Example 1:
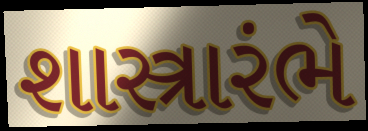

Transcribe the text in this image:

શાસ્ત્રારંભે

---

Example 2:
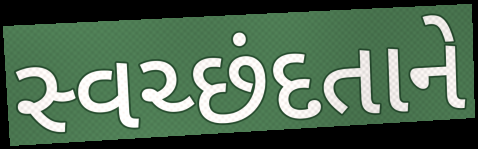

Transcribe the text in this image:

સ્વચ્છંદતાને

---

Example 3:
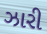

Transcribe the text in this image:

ઝારી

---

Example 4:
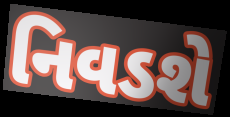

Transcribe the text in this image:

નિવડશે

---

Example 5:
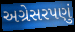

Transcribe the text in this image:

અગ્રેસરપણું